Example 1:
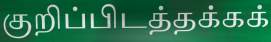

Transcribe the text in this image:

குறிப்பிடத்தக்கக்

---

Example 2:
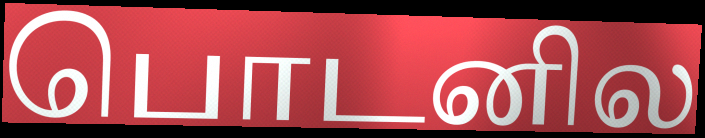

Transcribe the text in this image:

பொடனில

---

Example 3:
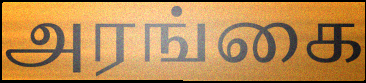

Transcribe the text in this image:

அரங்கை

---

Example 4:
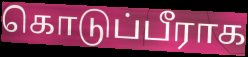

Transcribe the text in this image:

கொடுப்பீராக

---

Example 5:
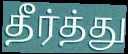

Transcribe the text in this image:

தீர்த்து